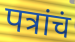
पत्रांचं